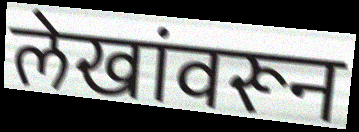
लेखांवरून